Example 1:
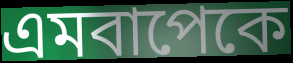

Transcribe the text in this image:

এমবাপেকে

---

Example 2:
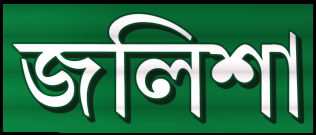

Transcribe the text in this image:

জলিশা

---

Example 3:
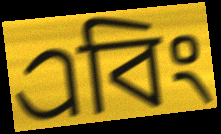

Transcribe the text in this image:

এবিং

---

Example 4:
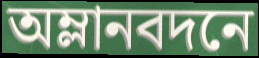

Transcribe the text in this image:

অম্লানবদনে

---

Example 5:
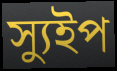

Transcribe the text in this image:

স্যুইপ